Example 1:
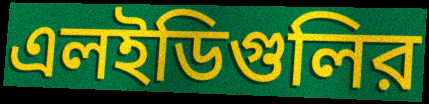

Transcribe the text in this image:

এলইডিগুলির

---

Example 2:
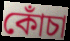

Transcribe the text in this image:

কোঁচা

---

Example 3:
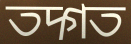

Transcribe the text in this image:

তদ্গত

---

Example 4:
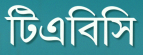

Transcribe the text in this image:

টিএবিসি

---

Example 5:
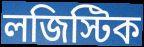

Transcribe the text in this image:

লজিস্টিক